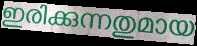
ഇരിക്കുന്നതുമായ